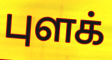
புளக்